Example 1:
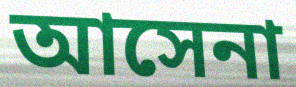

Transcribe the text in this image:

আসেনা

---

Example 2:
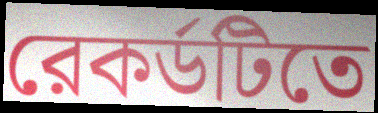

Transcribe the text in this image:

রেকর্ডটিতে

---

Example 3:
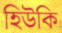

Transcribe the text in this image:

হিউকি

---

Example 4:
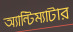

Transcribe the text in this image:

অ্যান্টিম্যাটার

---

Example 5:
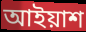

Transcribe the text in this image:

আইয়াশ